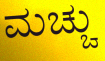
ಮಚ್ಚು